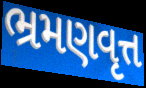
ભ્રમણવૃત્ત